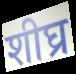
शीघ्र